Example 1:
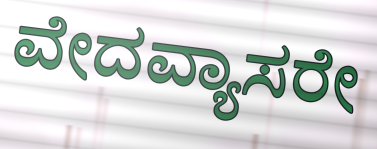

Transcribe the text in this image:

ವೇದವ್ಯಾಸರೇ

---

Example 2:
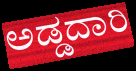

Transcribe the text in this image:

ಅಡ್ಡದಾರಿ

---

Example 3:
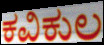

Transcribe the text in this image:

ಕವಿಕುಲ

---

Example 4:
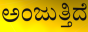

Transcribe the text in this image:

ಅಂಜುತ್ತಿದೆ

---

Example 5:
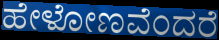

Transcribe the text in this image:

ಹೇಳೋಣವೆಂದರೆ